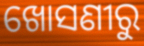
ଖୋସଣୀରୁ